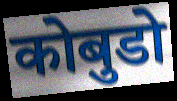
कोबुडो